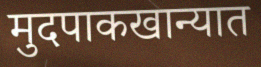
मुदपाकखान्यात